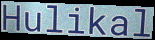
Hulikal